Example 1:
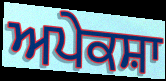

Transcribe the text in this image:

ਅਪੇਕਸ਼ਾ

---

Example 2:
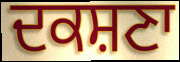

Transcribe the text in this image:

ਦਕਸ਼ਣਾ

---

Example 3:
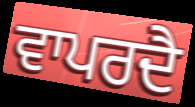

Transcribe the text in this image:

ਵਾਪਰਦੈ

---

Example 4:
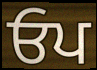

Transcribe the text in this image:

ਓਪ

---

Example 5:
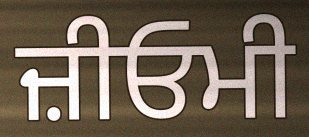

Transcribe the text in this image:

ਜ਼ੀਓਮੀ